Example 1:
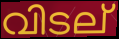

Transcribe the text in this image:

വിടല്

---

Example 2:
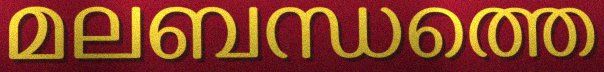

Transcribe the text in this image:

മലബന്ധത്തെ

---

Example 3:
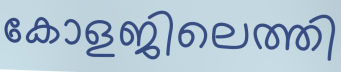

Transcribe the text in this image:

കോളജിലെത്തി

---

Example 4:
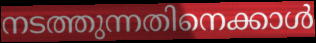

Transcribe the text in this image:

നടത്തുന്നതിനെക്കാൾ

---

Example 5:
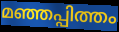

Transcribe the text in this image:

മഞ്ഞപ്പിത്തം